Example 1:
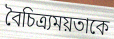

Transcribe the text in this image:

বৈচিত্র্যময়তাকে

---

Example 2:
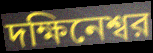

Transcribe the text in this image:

দক্ষিনেশ্বর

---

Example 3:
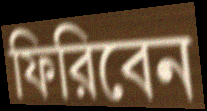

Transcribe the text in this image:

ফিরিবেন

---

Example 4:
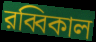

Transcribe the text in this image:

রব্বিকাল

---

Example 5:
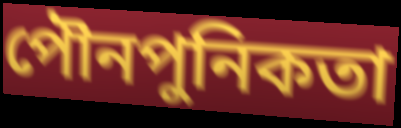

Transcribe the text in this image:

পৌনপুনিকতা